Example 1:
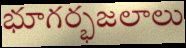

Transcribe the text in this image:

భూగర్భజలాలు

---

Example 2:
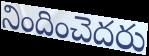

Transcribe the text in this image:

నిందించెదరు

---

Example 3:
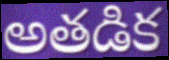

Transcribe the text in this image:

అతడిక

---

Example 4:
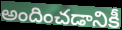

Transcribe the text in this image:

అందించడానికీ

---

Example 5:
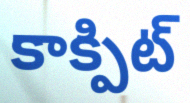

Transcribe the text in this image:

కాక్పిట్